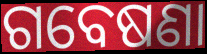
ଗବେଷଣା